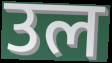
उल